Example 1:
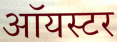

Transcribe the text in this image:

ऑयस्टर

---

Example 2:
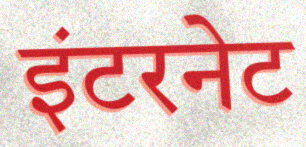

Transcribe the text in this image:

इंटरनेट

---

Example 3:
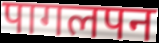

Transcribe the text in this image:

पागलपन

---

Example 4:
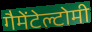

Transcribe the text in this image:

गैमेंटेल्टोमी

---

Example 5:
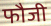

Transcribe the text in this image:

फौजी